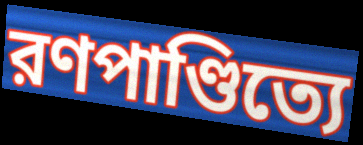
রণপাণ্ডিত্যে